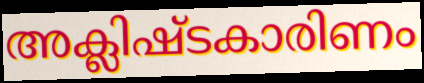
അക്ലിഷ്ടകാരിണം